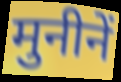
मुनीनें